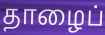
தாழைப்